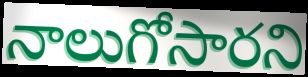
నాలుగోసారని